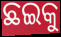
ଛଇକୁ